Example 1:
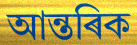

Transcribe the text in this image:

আন্তৰিক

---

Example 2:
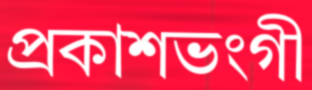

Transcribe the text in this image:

প্ৰকাশভংগী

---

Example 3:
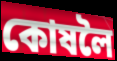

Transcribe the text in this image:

কোষলৈ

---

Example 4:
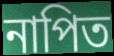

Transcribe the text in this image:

নাপিত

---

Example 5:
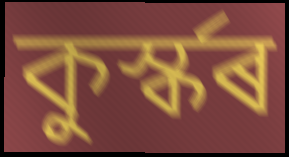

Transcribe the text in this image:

কুৰ্স্কৰ